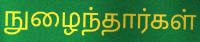
நுழைந்தார்கள்